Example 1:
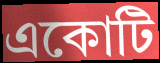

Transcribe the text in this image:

একোটি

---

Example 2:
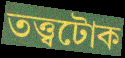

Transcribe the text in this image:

তত্ত্বটোক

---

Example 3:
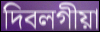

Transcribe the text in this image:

দিবলগীয়া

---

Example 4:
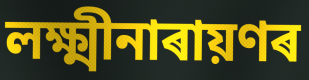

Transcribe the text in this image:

লক্ষ্মীনাৰায়ণৰ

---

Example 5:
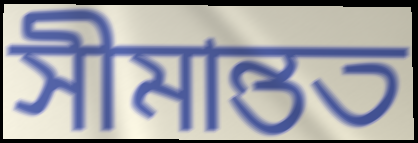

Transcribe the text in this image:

সীমান্তত